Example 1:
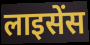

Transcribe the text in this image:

लाइसेंस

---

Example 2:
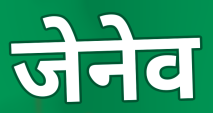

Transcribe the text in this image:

जेनेव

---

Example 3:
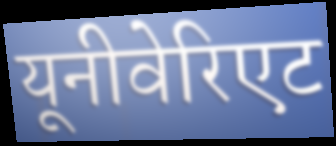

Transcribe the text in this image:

यूनीवेरिएट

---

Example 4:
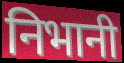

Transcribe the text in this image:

निभानी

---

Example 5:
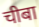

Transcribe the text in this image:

चीबा